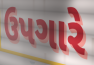
ઉપગારે